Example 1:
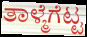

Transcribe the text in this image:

ತಾಳ್ಮೆಗೆಟ್ಟ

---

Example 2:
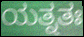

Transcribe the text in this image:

ಯತ್ನತಃ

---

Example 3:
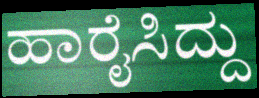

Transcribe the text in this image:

ಹಾರೈಸಿದ್ದು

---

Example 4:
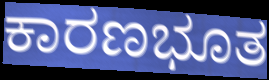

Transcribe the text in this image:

ಕಾರಣಭೂತ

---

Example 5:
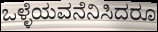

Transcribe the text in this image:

ಒಳ್ಳೆಯವನೆನಿಸಿದರೂ